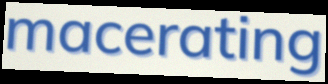
macerating